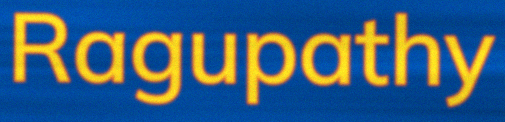
Ragupathy